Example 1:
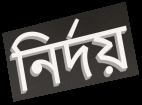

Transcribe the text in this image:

নিৰ্দয়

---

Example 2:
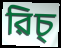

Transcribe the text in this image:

ৱিচ্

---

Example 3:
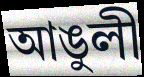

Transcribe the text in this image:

আঙুলী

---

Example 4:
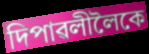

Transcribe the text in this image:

দিপাৱলীলৈকে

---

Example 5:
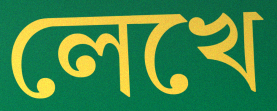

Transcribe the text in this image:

লেখে